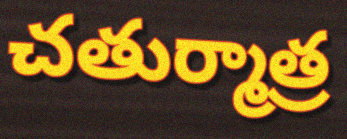
చతుర్మాత్ర